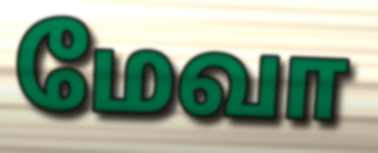
மேவா